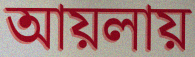
আয়লায়